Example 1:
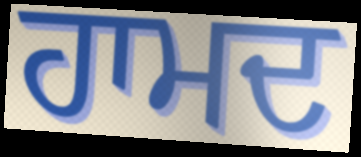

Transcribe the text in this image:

ਹਾਮਦ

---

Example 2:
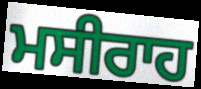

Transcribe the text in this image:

ਮਸੀਰਾਹ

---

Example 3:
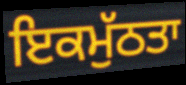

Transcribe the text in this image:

ਇਕਮੁੱਠਤਾ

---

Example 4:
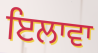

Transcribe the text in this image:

ਇਲਾਵਾ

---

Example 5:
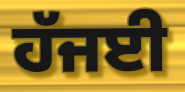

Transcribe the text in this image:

ਹੱਜਈ